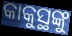
କାକୁସ୍ଥଙ୍କୁ